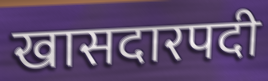
खासदारपदी